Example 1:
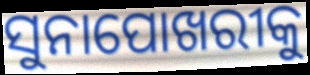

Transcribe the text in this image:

ସୁନାପୋଖରୀକୁ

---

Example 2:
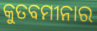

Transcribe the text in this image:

କୁତବମୀନାର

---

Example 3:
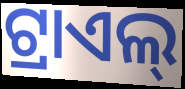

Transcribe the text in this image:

ଟ୍ରାଏଲ୍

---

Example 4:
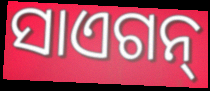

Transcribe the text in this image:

ସାଏଗନ୍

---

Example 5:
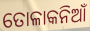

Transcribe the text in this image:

ତୋଳାକନିଆଁ